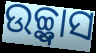
ଉଚ୍ଛ୍ୱାସ